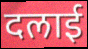
दलाई